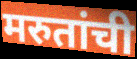
मरुतांची